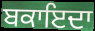
ਬਕਾਇਦਾ